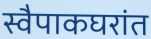
स्वैपाकघरांत